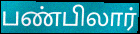
பண்பிலார்